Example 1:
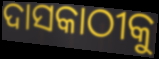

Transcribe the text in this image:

ଦାସକାଠୀକୁ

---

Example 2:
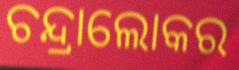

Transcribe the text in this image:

ଚନ୍ଦ୍ରାଲୋକର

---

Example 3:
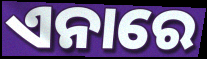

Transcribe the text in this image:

ଏନାରେ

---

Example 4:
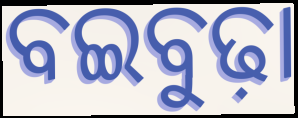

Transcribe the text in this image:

ବଇବୁଢ଼ା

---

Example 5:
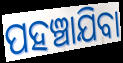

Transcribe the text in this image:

ପହଞ୍ଚାଯିବା